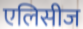
एलिसीज